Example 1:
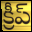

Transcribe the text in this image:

క్రీప్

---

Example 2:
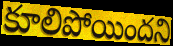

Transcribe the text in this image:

కూలిపోయిందని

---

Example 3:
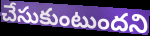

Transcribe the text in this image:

చేసుకుంటుందని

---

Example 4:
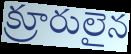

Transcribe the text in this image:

క్రూరులైన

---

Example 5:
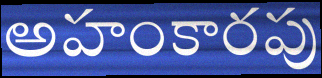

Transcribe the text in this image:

అహంకారపు